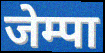
जेम्पा